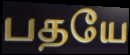
பதயே